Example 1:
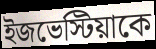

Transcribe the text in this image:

ইজভেস্টিয়াকে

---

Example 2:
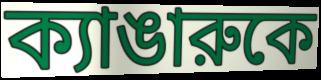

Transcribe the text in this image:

ক্যাঙারুকে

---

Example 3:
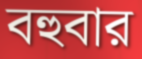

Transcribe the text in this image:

বহুবার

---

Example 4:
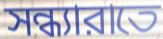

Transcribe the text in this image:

সন্ধ্যারাতে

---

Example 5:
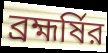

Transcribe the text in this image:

ব্রহ্মর্ষির